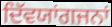
ਦਿੱਵਯਾਂਗਜਨਾਂ